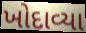
ખોદાવ્યા